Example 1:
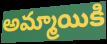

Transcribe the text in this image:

అమ్మాయికి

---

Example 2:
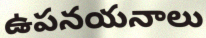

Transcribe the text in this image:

ఉపనయనాలు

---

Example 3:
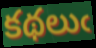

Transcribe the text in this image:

కథలుఁ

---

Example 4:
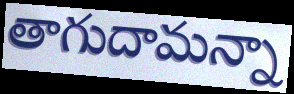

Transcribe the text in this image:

తాగుదామన్నా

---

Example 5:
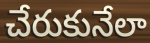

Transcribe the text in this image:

చేరుకునేలా